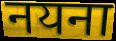
नयना